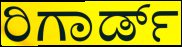
ರಿಗಾರ್ಡ್